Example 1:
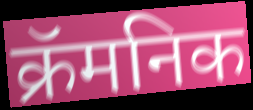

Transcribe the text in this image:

क्रॅमनिक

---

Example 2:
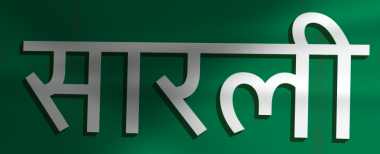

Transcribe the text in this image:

सारली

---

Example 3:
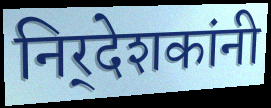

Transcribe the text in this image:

निर्देशकांनी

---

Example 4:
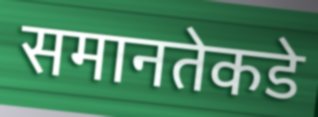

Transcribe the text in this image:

समानतेकडे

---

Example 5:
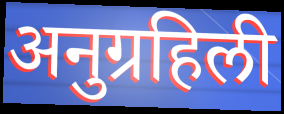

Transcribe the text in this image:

अनुग्रहिली